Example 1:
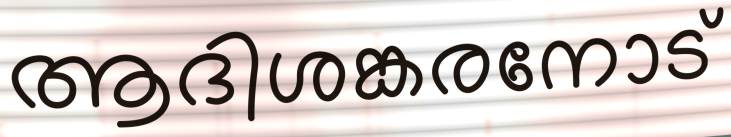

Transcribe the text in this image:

ആദിശങ്കരനോട്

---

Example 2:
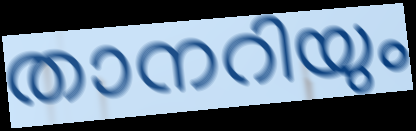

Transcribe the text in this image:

താനറിയും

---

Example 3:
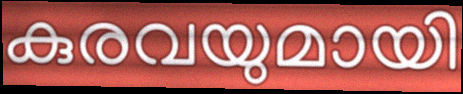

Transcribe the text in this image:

കുരവയുമായി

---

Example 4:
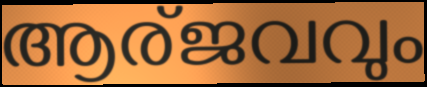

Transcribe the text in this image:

ആര്ജവവും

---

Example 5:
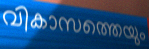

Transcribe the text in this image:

വികാസത്തെയും